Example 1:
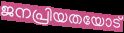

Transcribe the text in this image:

ജനപ്രിയതയോട്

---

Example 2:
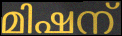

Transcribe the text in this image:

മിഷന്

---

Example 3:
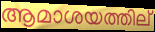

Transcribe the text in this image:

ആമാശയത്തില്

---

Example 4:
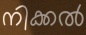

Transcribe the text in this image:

നിക്കൽ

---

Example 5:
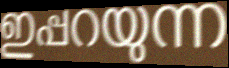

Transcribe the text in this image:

ഇപ്പറയുന്ന